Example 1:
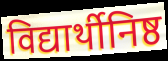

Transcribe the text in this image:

विद्यार्थीनिष्ठ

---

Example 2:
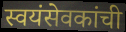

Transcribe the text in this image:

स्वयंसेवकांची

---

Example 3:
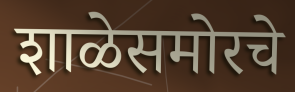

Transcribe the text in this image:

शाळेसमोरचे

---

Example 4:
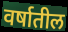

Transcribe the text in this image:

वर्षातील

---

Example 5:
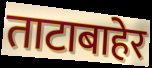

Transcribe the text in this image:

ताटाबाहेर